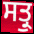
ਸਤ੍ਰੁ